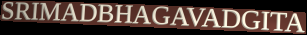
SRIMADBHAGAVADGITA